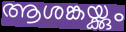
ആശങ്കയ്ക്കും